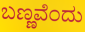
ಬಣ್ಣವೆಂದು